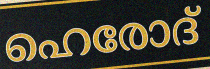
ഹെരോദ്